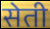
सेती